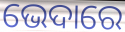
ଭେଦାରେ